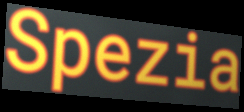
Spezia